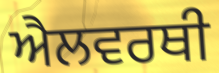
ਐਲਵਰਥੀ